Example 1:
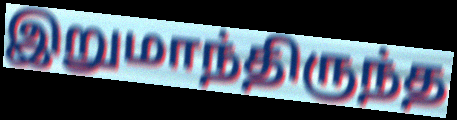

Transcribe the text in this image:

இறுமாந்திருந்த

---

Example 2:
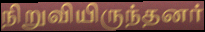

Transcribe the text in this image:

நிறுவியிருந்தனர்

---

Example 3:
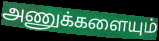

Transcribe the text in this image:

அணுக்களையும்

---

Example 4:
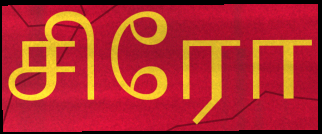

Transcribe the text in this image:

சிரோ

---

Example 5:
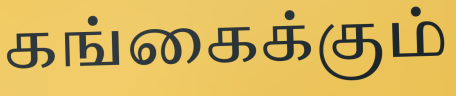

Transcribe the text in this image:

கங்கைக்கும்